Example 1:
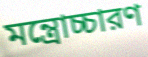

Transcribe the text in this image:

মন্ত্রোচ্চারণ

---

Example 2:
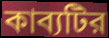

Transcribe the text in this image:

কাব্যটির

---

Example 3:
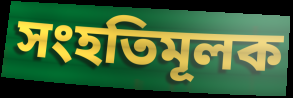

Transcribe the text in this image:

সংহতিমূলক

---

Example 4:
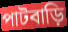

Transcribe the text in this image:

পাটবাড়ি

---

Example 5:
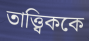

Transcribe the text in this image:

তাত্ত্বিককে